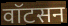
वॉटसन